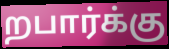
றபார்க்கு